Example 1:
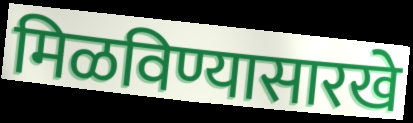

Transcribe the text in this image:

मिळविण्यासारखे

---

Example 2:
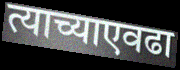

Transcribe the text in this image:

त्याच्याएवढा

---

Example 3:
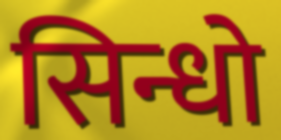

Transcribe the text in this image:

सिन्धो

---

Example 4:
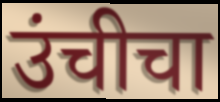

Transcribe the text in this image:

उंचीचा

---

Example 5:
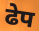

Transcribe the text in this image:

ढेप